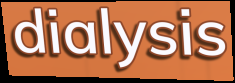
dialysis